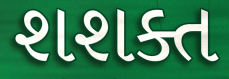
શશક્ત